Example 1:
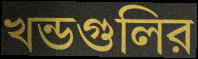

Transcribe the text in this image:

খন্ডগুলির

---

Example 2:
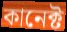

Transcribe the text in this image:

কানেক্ট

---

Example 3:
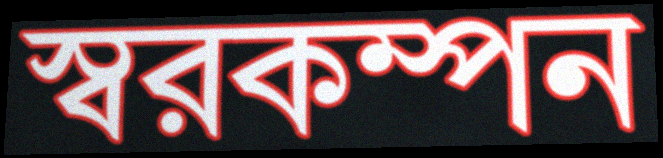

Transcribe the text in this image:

স্বরকম্পন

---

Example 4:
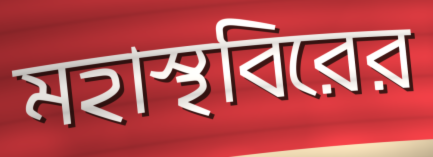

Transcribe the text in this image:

মহাস্থবিরের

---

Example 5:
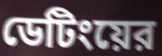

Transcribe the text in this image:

ডেটিংয়ের